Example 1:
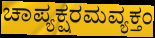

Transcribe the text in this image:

ಚಾಪ್ಯಕ್ಷರಮವ್ಯಕ್ತಂ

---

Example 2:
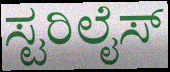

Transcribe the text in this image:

ಸ್ಟರಿಲೈಸ್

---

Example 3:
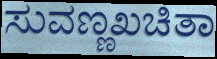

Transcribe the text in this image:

ಸುವಣ್ಣಖಚಿತಾ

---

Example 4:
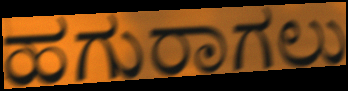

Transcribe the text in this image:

ಹಗುರಾಗಲು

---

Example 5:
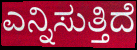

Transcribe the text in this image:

ಎನ್ನಿಸುತ್ತಿದೆ